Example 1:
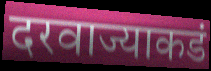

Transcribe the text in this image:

दरवाज्याकडं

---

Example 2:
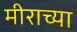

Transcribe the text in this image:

मीराच्या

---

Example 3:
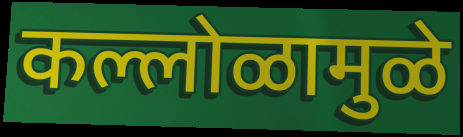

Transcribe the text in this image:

कल्लोळामुळे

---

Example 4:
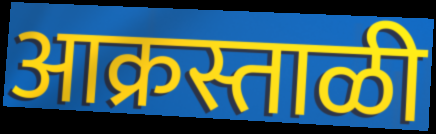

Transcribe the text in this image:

आक्रस्ताळी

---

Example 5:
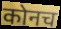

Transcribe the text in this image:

कोनच